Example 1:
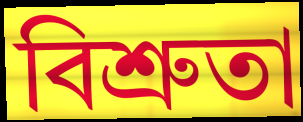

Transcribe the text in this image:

বিশ্রুতা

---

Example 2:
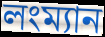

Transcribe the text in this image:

লংম্যান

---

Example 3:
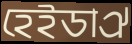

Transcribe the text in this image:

হেইডাঐ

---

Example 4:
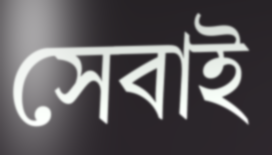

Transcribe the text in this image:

সেবাই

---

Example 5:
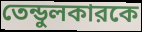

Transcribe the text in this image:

তেন্ডুলকারকে